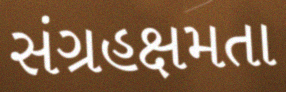
સંગ્રહક્ષમતા